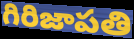
గిరిజాపతి